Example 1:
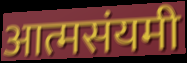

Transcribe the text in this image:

आत्मसंयमी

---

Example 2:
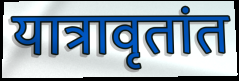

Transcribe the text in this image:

यात्रावृतांत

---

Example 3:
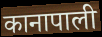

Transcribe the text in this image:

कानापाली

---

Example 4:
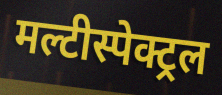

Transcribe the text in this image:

मल्टीस्पेक्ट्रल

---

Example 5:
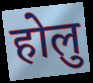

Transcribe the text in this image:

होलु